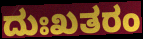
ದುಃಖತರಂ